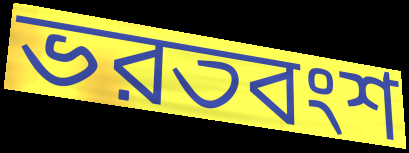
ভরতবংশ